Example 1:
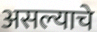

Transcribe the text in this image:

असल्‍याचे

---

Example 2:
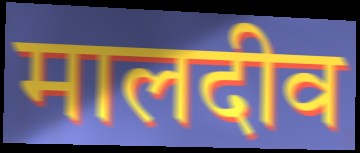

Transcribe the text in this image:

मालदीव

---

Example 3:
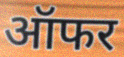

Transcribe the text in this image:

ऑफर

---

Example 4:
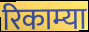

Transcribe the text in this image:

रिकाम्या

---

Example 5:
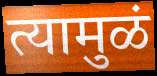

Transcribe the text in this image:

त्यामुळं